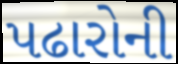
પઢારોની